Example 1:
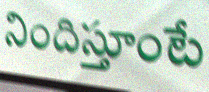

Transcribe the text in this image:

నిందిస్తూంటే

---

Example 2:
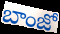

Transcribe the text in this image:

బాంజో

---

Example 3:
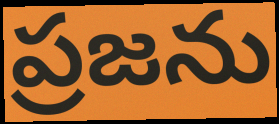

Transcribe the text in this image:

ప్రజను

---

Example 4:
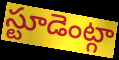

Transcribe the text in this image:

స్టూడెంట్గా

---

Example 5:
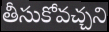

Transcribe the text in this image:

తీసుకోవచ్చని